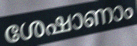
ശേഷാണാം